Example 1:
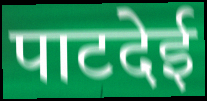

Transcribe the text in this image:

पाटदेई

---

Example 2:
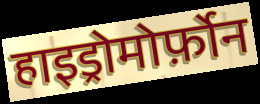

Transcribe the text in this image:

हाइड्रोमोर्फ़ोन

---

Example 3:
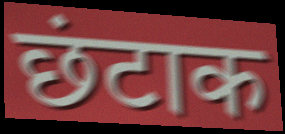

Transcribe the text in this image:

छंटाक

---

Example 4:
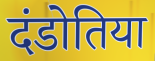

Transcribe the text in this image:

दंडोतिया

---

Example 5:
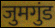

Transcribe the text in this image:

जुमगुंड